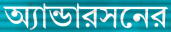
অ্যান্ডারসনের